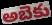
అబెకు